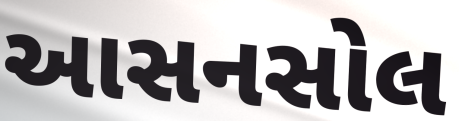
આસનસોલ